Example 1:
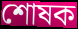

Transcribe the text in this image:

শোষক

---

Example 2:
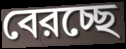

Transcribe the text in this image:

বেরচ্ছে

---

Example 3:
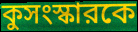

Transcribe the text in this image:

কুসংস্কারকে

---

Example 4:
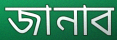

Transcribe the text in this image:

জানাব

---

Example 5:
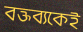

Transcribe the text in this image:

বক্তব্যকেই